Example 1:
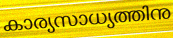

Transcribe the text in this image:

കാര്യസാധ്യത്തിനു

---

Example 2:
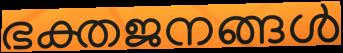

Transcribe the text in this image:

ഭക്തജനങ്ങൾ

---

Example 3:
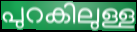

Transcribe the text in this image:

പുറകിലുള്ള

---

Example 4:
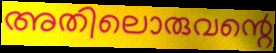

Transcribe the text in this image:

അതിലൊരുവന്റെ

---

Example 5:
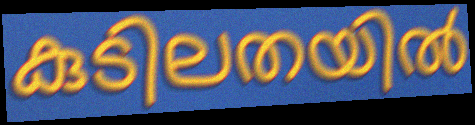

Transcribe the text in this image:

കുടിലതയിൽ